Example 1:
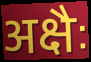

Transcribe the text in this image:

अक्षैः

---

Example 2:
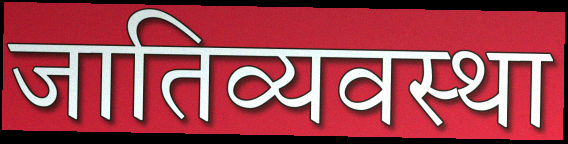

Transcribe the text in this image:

जातिव्यवस्था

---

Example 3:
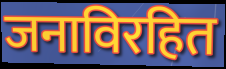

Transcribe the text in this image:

जनाविरहित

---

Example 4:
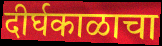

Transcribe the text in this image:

दीर्घकाळाचा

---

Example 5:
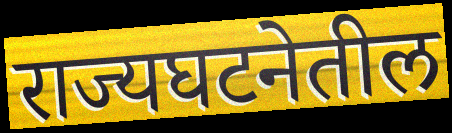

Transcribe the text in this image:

राज्यघटनेतील